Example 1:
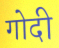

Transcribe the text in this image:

गोदी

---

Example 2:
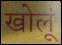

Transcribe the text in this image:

खोलूं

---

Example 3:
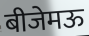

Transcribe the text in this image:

बीजेमऊ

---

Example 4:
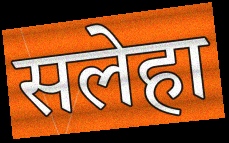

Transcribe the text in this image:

सलेहा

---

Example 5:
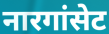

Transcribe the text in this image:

नारगांसेट